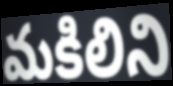
మకిలిని